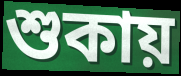
শুকায়